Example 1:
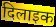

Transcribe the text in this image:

दिलाइक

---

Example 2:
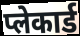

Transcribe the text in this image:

प्लेकार्ड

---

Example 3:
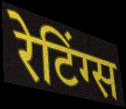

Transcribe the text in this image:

रेटिंग्स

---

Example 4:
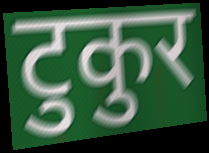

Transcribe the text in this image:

टुकुर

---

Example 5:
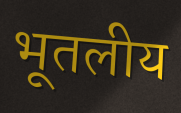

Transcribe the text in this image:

भूतलीय